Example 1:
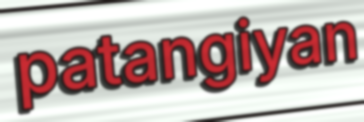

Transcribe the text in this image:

patangiyan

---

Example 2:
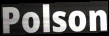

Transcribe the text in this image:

Polson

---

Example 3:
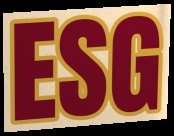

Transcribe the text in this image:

ESG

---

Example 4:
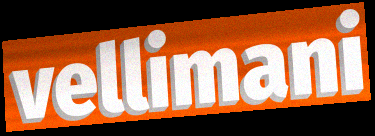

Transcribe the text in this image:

vellimani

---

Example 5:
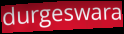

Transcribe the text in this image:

durgeswara